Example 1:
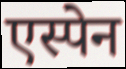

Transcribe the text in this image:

एस्पेन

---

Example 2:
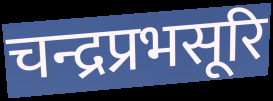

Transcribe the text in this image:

चन्द्रप्रभसूरि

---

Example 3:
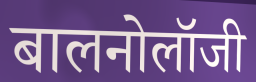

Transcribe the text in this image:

बालनोलॉजी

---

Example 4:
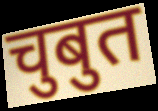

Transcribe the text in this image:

चुबुत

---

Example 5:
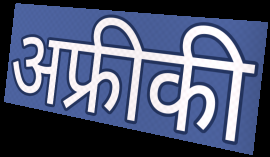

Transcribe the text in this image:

अफ्रीकी